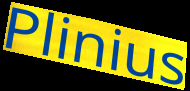
Plinius